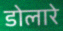
डोलारे